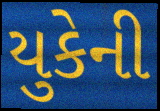
યુકેની